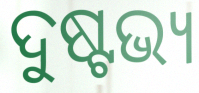
ଦୁଷ୍ଟଭ୍ୟ